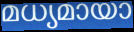
മധ്യമായാ